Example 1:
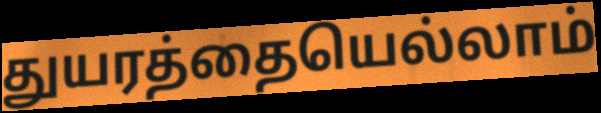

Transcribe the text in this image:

துயரத்தையெல்லாம்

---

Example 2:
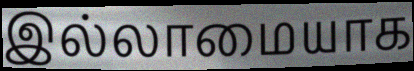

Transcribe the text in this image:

இல்லாமையாக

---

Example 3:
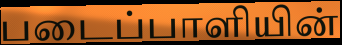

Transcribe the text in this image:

படைப்பாளியின்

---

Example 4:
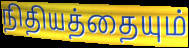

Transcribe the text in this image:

நிதியத்தையும்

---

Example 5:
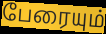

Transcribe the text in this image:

பேரையும்